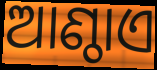
ଆଣ୍ଠାଏ